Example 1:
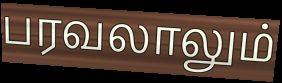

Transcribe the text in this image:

பரவலாலும்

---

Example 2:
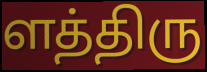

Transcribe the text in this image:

ளத்திரு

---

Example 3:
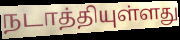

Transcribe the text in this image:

நடாத்தியுள்ளது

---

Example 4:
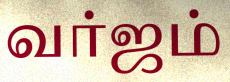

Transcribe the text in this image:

வர்ஜம்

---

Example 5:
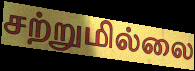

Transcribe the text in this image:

சற்றுமில்லை